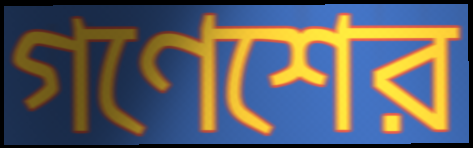
গণেশের